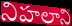
నిహలాని